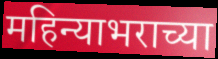
महिन्याभराच्या